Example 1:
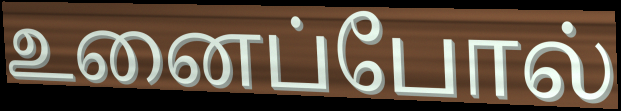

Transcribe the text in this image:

உனைப்போல்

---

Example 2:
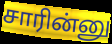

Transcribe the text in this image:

சாரின்னு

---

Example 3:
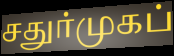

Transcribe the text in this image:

சதுர்முகப்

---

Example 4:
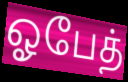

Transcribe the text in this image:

ஓபேத்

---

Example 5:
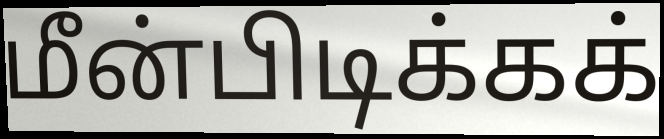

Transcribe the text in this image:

மீன்பிடிக்கக்